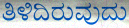
ತಿಳಿದಿರುವುದು